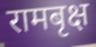
रामबृक्ष